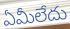
ఏమీలేదు